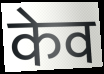
केव